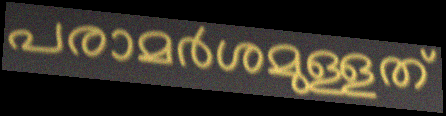
പരാമർശമുള്ളത്